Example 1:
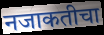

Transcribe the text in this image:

नजाकतीचा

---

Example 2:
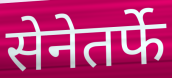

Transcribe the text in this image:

सेनेतर्फे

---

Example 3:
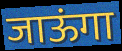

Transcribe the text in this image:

जाऊंगा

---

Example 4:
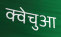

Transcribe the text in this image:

क्वेचुआ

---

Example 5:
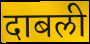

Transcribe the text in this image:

दाबली